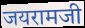
जयरामजी